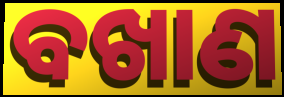
ବଖାଣ